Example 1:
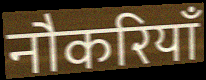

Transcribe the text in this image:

नौकरियाँ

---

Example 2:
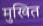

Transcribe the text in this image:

मुखित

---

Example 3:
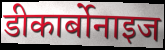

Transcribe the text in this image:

डीकार्बोनाइज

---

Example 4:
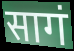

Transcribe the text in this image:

सागं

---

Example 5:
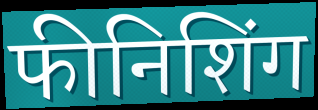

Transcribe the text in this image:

फीनिशिंग